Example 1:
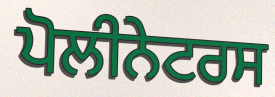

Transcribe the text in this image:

ਪੋਲੀਨੇਟਰਸ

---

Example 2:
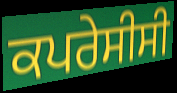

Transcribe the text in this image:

ਕਪਰੇਸੀਸੀ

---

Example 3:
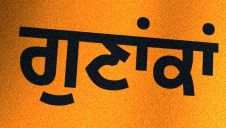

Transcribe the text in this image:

ਗੁਣਾਂਕਾਂ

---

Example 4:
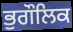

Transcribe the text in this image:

ਭੁਗੌਲਿਕ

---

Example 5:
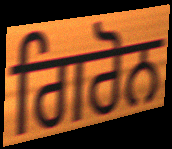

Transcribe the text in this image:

ਗਿਰੋਨ